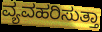
ವ್ಯವಹರಿಸುತ್ತಾ